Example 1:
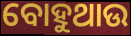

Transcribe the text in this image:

ବୋହୁଥାଉ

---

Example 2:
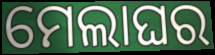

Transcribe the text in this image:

ମେଲାଘର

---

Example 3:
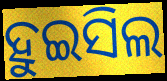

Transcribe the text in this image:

ହୁଇସିଲ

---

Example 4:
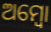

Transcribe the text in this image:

ଅମ୍ୱୋ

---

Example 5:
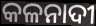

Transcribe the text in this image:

କଳନାଦୀ